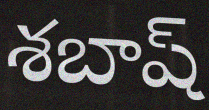
శబాష్